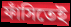
ফাঁসিতেই